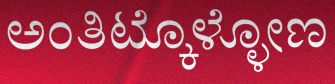
ಅಂತಿಟ್ಕೊಳ್ಳೋಣ